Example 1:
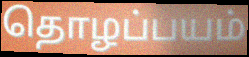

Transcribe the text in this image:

தொழப்பயம்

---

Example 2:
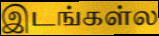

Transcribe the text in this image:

இடங்கள்ல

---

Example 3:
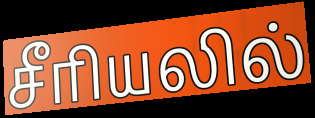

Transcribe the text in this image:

சீரியலில்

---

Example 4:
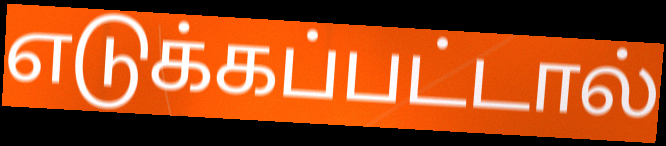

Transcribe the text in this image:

எடுக்கப்பட்டால்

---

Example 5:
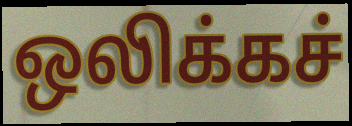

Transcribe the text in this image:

ஒலிக்கச்